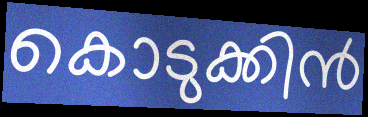
കൊടുക്കിൻ